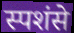
स्पशंसे